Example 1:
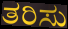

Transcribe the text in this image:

ತರಿಸು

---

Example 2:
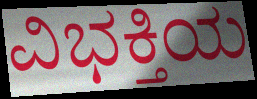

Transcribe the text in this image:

ವಿಭಕ್ತಿಯ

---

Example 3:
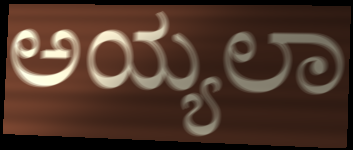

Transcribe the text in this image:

ಅಯ್ಯಲಾ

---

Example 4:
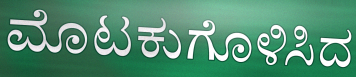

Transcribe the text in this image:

ಮೊಟಕುಗೊಳಿಸಿದ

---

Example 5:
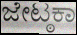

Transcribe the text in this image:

ಜೇಟ್ಠಕಾ